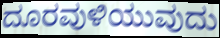
ದೂರವುಳಿಯುವುದು